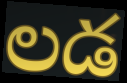
లడ